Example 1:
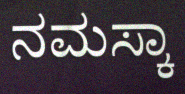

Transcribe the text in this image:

ನಮಸ್ಕಾ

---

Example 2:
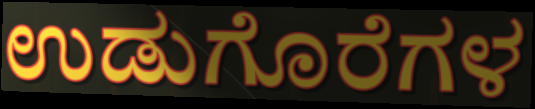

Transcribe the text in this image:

ಉಡುಗೊರೆಗಳ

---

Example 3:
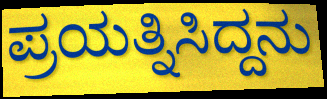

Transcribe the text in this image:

ಪ್ರಯತ್ನಿಸಿದ್ದನು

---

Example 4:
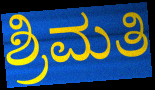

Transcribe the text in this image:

ಶ್ರಿಮತಿ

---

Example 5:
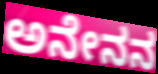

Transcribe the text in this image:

ಅನೇನನ